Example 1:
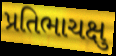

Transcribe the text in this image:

પ્રતિભાચક્ષુ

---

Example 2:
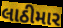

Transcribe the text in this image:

લાઠીમાર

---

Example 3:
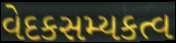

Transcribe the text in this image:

વેદકસમ્યકત્વ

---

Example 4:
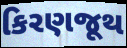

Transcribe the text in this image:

કિરણજૂથ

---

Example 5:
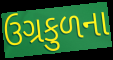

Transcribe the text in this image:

ઉગ્રકુળના